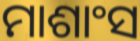
ମାଶାଂସ